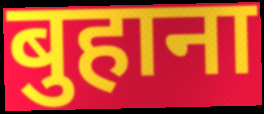
बुहाना